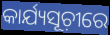
କାର୍ଯ୍ୟସୂଚ଼ୀରେ